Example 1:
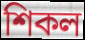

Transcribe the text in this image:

শিকল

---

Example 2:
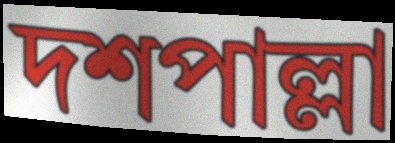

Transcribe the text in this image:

দশপাল্লা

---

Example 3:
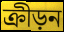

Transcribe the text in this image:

ক্রীড়ন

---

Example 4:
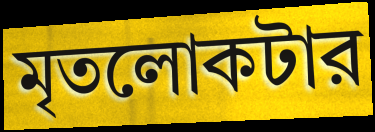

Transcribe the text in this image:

মৃতলোকটার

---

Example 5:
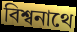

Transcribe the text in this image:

বিশ্বনাথে